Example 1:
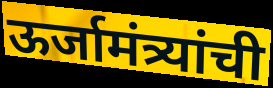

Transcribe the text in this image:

ऊर्जामंत्र्यांची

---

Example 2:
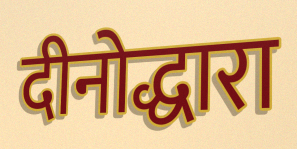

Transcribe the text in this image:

दीनोद्धारा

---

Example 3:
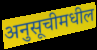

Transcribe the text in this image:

अनुसूचीमधील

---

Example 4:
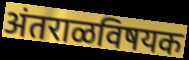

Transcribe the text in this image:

अंतराळविषयक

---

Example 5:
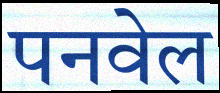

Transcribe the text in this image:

पनवेल